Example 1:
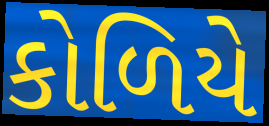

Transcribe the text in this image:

કોળિયે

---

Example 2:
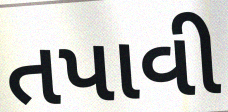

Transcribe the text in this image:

તપાવી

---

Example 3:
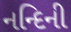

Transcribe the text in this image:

નન્દિની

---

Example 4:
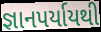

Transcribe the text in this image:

જ્ઞાનપર્યાયથી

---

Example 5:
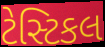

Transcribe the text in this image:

ટેસ્ટિકલ